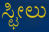
ಸ್ಟೀಲು